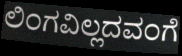
ಲಿಂಗವಿಲ್ಲದವಂಗೆ